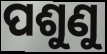
ପଶୁଣୁ